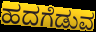
ಹದಗೆಡುವ